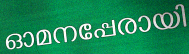
ഓമനപ്പേരായി